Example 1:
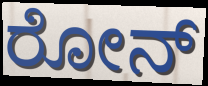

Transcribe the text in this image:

ರೋನ್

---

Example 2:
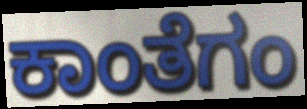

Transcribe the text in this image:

ಕಾಂತೆಗಂ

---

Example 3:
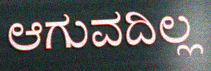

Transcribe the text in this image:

ಆಗುವದಿಲ್ಲ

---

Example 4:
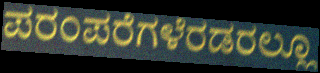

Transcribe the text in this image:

ಪರಂಪರೆಗಳೆರಡರಲ್ಲೂ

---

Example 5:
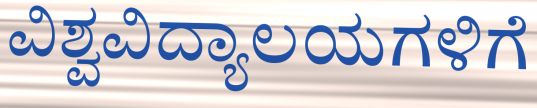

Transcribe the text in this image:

ವಿಶ್ವವಿದ್ಯಾಲಯಗಳಿಗೆ